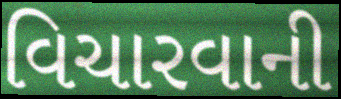
વિચારવાની